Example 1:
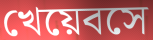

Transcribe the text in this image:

খেয়েবসে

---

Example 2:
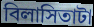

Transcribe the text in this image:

বিলাসিতাটা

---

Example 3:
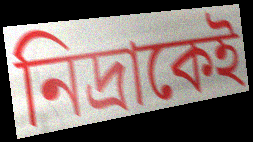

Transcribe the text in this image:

নিদ্রাকেই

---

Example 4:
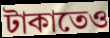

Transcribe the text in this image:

টাকাতেও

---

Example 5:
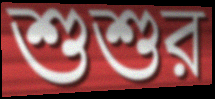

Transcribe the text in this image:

শুশুর